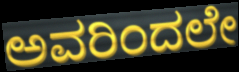
ಅವರಿಂದಲೇ